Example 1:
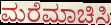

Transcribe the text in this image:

ಮರೆಮಾಚಿಸಿ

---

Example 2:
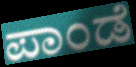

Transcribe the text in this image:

ಪಾಂಡೆ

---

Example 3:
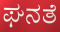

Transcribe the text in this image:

ಘನತೆ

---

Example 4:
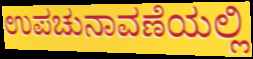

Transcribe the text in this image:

ಉಪಚುನಾವಣೆಯಲ್ಲಿ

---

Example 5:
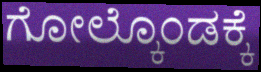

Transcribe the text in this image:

ಗೋಲ್ಕೊಂಡಕ್ಕೆ